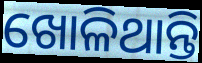
ଖୋଳିଥାନ୍ତି